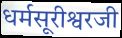
धर्मसूरीश्वरजी